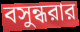
বসুন্ধরার